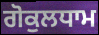
ਗੋਕੁਲਧਾਮ